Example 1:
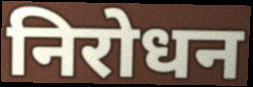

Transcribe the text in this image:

निरोधन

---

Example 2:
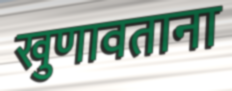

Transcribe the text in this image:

खुणावताना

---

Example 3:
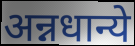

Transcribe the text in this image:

अन्नधान्ये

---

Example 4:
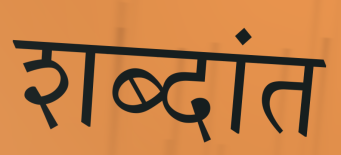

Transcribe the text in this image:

शब्दांत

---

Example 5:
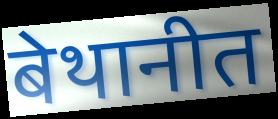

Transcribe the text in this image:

बेथानीत